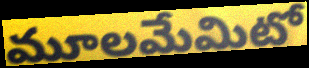
మూలమేమిటో